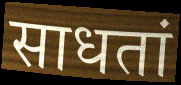
साधतां